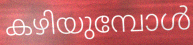
കഴിയുമ്പോൾ